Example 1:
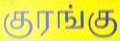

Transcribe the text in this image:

குரங்கு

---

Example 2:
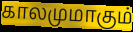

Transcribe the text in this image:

காலமுமாகும்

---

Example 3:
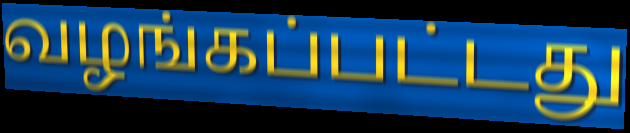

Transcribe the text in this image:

வழங்கப்பட்டது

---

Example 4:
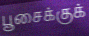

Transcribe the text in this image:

பூசைக்குக்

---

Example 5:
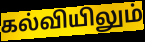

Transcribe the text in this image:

கல்வியிலும்